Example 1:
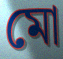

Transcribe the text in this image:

মো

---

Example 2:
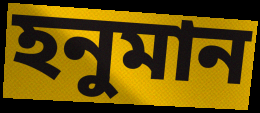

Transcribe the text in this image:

হনুমান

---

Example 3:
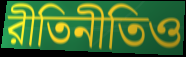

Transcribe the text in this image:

রীতিনীতিও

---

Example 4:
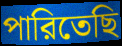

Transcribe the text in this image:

পারিতেছি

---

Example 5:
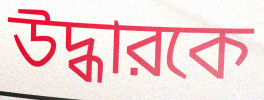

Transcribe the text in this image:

উদ্ধারকে